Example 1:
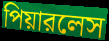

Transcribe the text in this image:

পিয়ারলেস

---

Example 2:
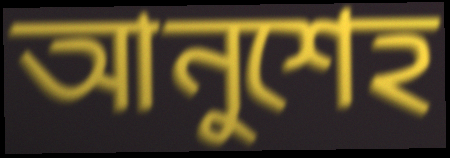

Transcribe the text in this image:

আনুশেহ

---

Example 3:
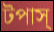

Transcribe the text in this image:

টপাস্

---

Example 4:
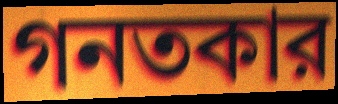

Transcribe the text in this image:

গনতকার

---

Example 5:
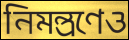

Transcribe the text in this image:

নিমন্ত্রণেও